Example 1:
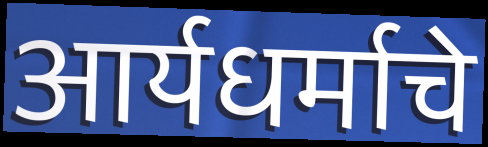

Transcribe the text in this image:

आर्यधर्माचे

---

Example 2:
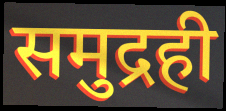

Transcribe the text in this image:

समुद्रही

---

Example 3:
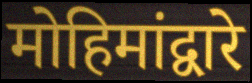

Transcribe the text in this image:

मोहिमांद्वारे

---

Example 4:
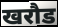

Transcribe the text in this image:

खरौड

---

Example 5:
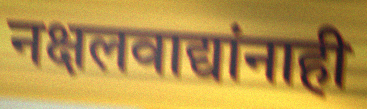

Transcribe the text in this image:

नक्षलवाद्यांनाही